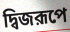
দ্বিজরূপে